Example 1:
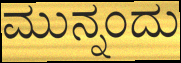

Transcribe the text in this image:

ಮುನ್ನಂದು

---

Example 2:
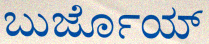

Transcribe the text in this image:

ಬುರ್ಜೊಯ್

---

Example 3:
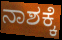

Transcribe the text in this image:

ನಾಶಕ್ಕೆ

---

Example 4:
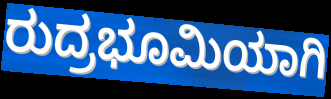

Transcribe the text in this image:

ರುದ್ರಭೂಮಿಯಾಗಿ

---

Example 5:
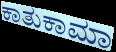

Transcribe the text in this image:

ಕಾತುಕಾಮಾ